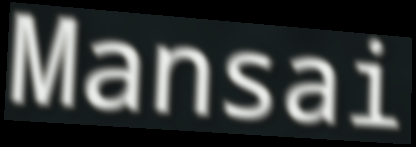
Mansai